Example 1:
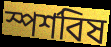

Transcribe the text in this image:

স্পর্শবিষ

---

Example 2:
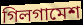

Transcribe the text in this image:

গিলগামেশ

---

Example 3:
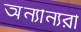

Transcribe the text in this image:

অন্যান্যরা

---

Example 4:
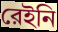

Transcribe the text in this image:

রেইনি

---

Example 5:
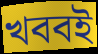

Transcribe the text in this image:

খববই